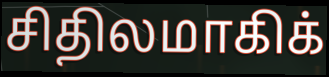
சிதிலமாகிக்